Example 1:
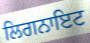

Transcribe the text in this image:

ਲਿਗਨਾਇਟ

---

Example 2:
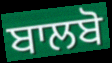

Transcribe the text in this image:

ਬਾਲਬੋ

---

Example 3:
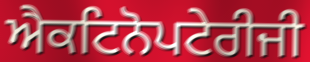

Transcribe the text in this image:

ਐਕਟਿਨੋਪਟੇਰੀਜੀ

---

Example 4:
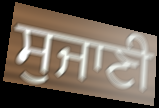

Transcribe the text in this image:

ਸੁਜਾਣੀ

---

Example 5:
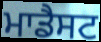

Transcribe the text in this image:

ਮਾਡੈਸਟ